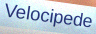
Velocipede